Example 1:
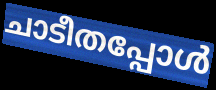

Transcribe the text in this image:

ചാടീതപ്പോൾ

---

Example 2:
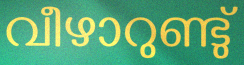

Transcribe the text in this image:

വീഴാറുണ്ടു്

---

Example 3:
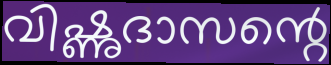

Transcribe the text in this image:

വിഷ്ണുദാസന്റെ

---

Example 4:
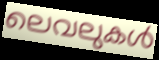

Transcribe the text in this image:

ലെവലുകൾ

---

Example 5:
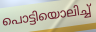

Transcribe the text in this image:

പൊട്ടിയൊലിച്ച്